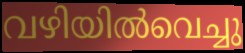
വഴിയിൽവെച്ചു